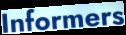
Informers